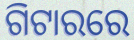
ଗିଟାରରେ